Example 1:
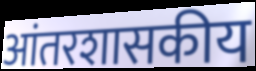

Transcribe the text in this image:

आंतरशासकीय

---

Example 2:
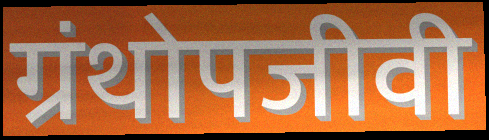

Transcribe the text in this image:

ग्रंथोपजीवी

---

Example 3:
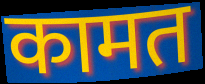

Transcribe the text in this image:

कामत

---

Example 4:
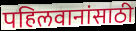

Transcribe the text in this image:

पहिलवानांसाठी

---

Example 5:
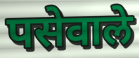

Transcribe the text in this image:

पसेवाले